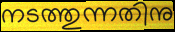
നടത്തുന്നതിനു